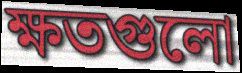
ক্ষতগুলো